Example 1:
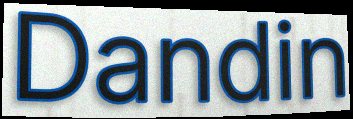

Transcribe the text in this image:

Dandin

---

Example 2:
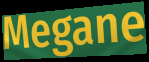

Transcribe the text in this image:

Megane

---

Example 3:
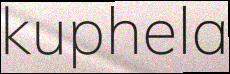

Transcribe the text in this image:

kuphela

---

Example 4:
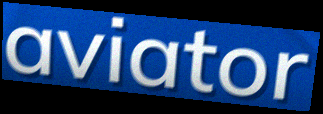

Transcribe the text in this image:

aviator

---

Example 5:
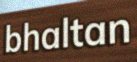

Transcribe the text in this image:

bhaltan